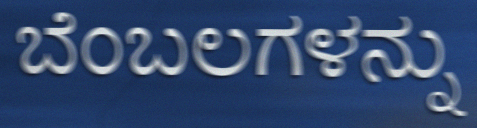
ಬೆಂಬಲಗಳನ್ನು